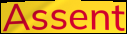
Assent